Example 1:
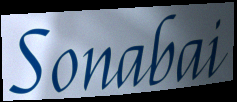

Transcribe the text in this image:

Sonabai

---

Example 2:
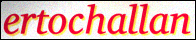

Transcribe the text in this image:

ertochallan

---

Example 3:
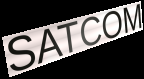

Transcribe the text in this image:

SATCOM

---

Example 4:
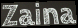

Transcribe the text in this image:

Zaina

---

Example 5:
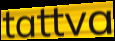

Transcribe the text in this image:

tattva